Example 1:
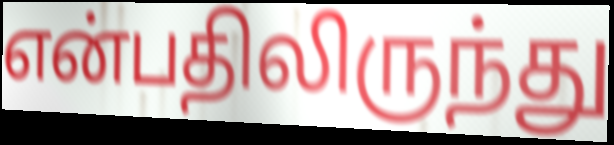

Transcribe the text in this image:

என்பதிலிருந்து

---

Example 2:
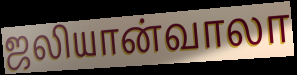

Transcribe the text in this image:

ஜலியான்வாலா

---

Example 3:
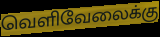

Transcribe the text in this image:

வெளிவேலைக்கு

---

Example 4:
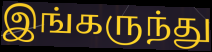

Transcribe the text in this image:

இங்கருந்து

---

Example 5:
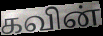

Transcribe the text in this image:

கவின்